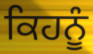
ਕਿਹਨੂੰ